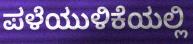
ಪಳೆಯುಳಿಕೆಯಲ್ಲಿ